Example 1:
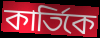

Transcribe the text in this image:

কার্তিকে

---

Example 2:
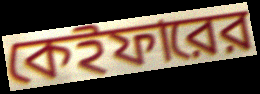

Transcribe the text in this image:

কেইফারের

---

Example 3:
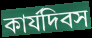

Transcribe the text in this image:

কার্যদিবস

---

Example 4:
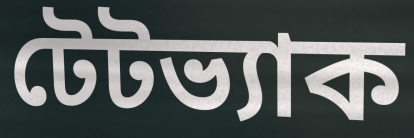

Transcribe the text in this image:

টেটভ্যাক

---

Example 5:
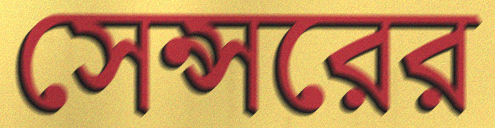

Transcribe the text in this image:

সেন্সরের